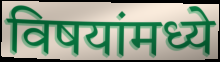
विषयांमध्ये